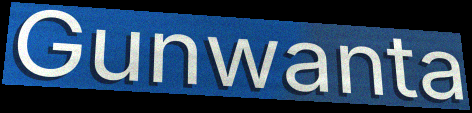
Gunwanta